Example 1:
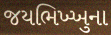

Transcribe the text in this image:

જયભિખ્ખુના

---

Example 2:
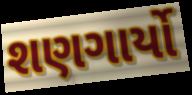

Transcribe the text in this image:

શણગાર્યો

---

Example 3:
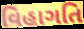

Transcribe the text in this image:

વિહાગતિ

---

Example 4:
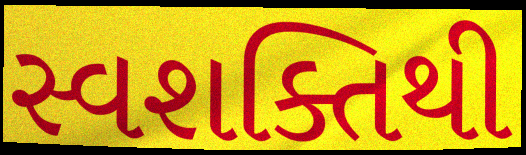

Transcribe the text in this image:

સ્વશક્તિથી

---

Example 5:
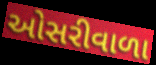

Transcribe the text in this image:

ઓસરીવાળા